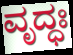
ವೃದ್ಧಃ